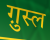
ग़ुस्ल